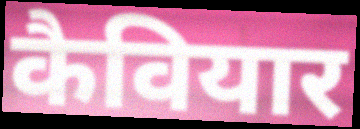
कैवियार